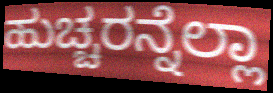
ಹುಚ್ಚರನ್ನೆಲ್ಲಾ